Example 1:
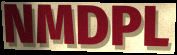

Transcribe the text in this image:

NMDPL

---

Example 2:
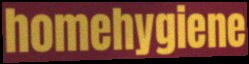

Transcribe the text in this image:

homehygiene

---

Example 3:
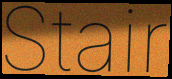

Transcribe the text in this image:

Stair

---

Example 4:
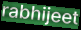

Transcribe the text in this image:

rabhijeet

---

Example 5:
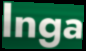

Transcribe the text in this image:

lnga